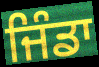
ਜਿੰਡਾ